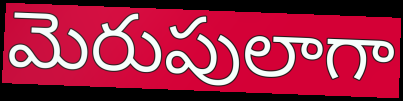
మెరుపులాగా